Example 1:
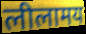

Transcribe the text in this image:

लीलामय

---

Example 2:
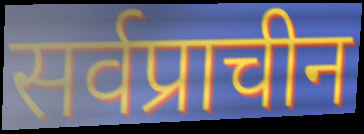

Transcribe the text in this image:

सर्वप्राचीन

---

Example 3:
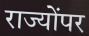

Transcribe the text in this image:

राज्योंपर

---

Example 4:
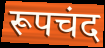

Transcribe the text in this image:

रूपचंद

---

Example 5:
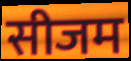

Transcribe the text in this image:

सीजम